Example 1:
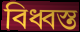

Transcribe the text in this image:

বিধ্বস্ত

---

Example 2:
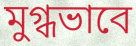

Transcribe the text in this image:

মুগ্ধভাবে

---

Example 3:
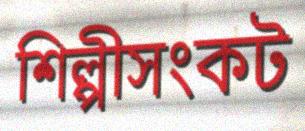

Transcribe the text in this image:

শিল্পীসংকট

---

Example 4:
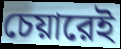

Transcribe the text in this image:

চেয়ারেই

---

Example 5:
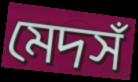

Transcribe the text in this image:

মেদসঁ